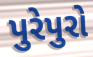
પુરેપુરો